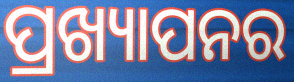
ପ୍ରଖ୍ୟାପନର